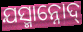
ଯସ୍ମାନ୍ନୋଦ୍